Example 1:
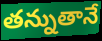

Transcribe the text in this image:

తన్నుతానే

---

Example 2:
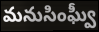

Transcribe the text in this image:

మనుసింఘ్వీ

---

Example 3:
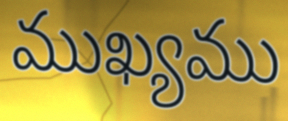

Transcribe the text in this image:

ముఖ్యము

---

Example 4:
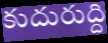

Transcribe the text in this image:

కుదురుద్ది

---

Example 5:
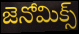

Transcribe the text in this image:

జెనోమిక్స్